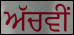
ਅੱਚਵੀਂ